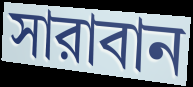
সারাবান